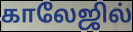
காலேஜில்